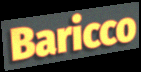
Baricco